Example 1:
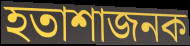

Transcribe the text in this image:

হতাশাজনক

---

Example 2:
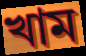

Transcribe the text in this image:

খাম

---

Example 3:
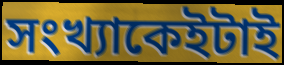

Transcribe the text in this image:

সংখ্যাকেইটাই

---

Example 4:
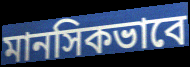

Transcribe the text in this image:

মানসিকভাবে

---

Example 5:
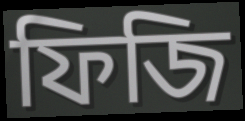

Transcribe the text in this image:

ফিজি